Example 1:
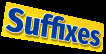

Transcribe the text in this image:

Suffixes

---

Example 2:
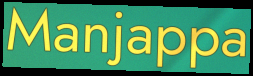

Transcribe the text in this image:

Manjappa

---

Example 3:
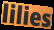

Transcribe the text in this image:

lilies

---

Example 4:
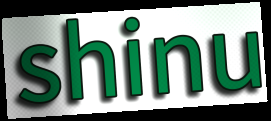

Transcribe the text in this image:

shinu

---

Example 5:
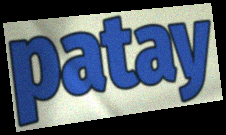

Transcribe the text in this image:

patay